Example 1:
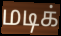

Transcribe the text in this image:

மடிக்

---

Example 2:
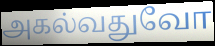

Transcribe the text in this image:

அகல்வதுவோ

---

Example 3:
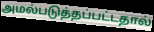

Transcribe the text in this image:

அமல்படுத்தப்பட்டதால்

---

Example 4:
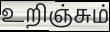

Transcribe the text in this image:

உறிஞ்சும்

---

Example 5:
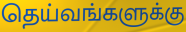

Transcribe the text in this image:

தெய்வங்களுக்கு